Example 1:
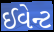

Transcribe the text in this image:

ઈવેન્ટ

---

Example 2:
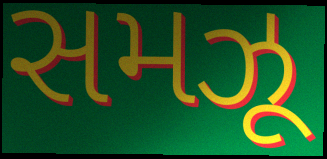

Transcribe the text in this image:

સમઝૂ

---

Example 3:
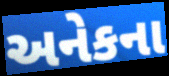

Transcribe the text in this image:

અનેકના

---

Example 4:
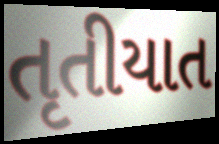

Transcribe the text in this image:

તૃતીયાત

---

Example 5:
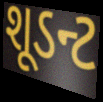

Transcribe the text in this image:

શૂડન્ટ